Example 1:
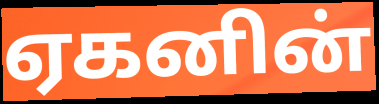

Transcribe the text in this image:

ஏகனின்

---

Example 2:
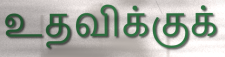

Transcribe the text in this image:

உதவிக்குக்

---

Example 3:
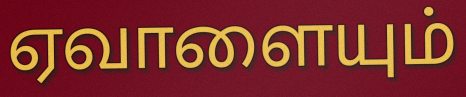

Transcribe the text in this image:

ஏவாளையும்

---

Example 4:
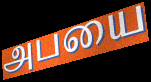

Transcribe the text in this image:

அபயை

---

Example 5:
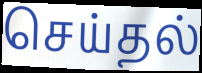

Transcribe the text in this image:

செய்தல்